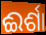
ଈର୍ଶା